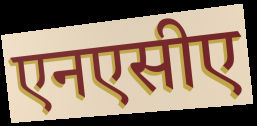
एनएसीए